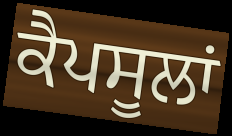
ਕੈਪਸੂਲਾਂ